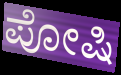
ಪೋಷಿ